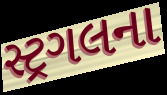
સ્ટ્રગલના